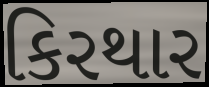
કિરથાર